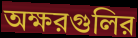
অক্ষরগুলির